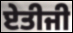
ਏਤੀਜੀ